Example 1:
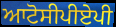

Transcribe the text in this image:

ਆਟੋਸੀਪੀਏਪੀ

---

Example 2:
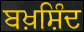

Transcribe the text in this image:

ਬਖ਼ਸ਼ਿੰਦ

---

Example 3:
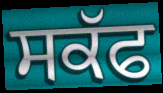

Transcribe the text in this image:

ਸਕੱਫ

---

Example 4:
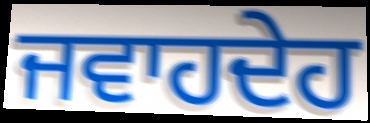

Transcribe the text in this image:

ਜਵਾਹਦੇਹ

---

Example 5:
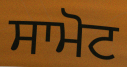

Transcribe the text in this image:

ਸਾਮੋਟ